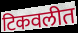
टिकवलीत